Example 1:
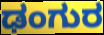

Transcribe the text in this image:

ಢಂಗುರ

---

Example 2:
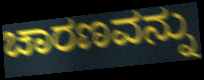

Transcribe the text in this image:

ಚಾರಣವನ್ನು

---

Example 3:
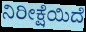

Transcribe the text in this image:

ನಿರೀಕ್ಷೆಯಿದೆ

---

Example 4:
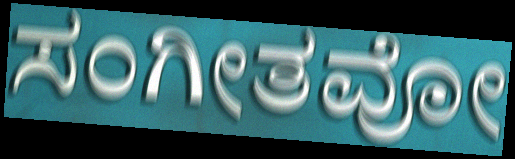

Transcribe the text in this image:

ಸಂಗೀತವೋ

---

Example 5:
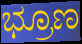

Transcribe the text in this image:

ಭ್ರೂಣ